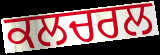
ਕਲਚਰਲ